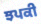
ਝਪਕੀ